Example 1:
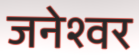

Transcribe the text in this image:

जनेश्वर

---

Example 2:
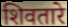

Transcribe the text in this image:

शिवतारे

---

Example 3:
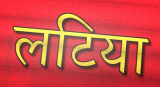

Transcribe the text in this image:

लटिया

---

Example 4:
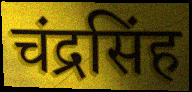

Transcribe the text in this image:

चंद्रसिंह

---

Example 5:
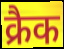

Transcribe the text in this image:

क्रैक